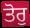
ਤੋਰੁ